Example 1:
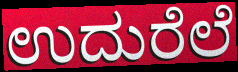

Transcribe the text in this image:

ಉದುರೆಲೆ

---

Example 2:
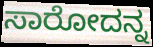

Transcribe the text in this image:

ಸಾರೋದನ್ನ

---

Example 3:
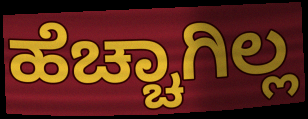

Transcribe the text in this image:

ಹೆಚ್ಚಾಗಿಲ್ಲ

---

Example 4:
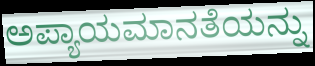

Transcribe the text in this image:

ಅಪ್ಯಾಯಮಾನತೆಯನ್ನು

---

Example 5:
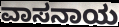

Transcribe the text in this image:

ವಾಸನಾಯ